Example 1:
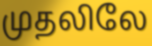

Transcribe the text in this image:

முதலிலே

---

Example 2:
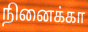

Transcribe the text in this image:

நினைக்கா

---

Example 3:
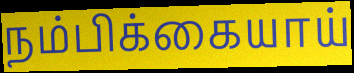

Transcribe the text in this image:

நம்பிக்கையாய்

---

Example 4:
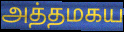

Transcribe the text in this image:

அத்தமகய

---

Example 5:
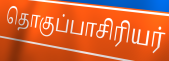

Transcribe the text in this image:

தொகுப்பாசிரியர்